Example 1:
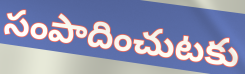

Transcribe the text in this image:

సంపాదించుటకు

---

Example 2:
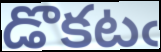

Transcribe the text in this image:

డొకటఁ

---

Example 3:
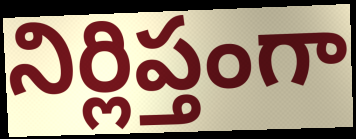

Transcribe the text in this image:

నిర్లిప్తంగా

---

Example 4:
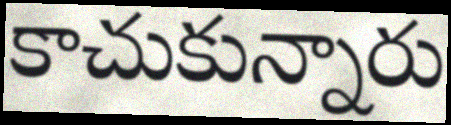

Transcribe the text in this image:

కాచుకున్నారు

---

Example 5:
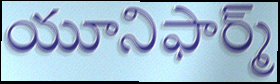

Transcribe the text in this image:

యూనిఫార్మ్